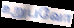
உறுபவோ